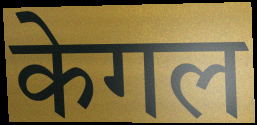
केगल